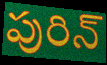
పురిన్